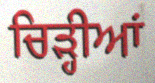
ਚਿੜ੍ਹੀਆਂ